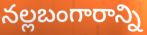
నల్లబంగారాన్ని